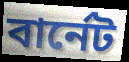
বার্নেট